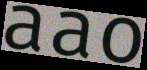
aao